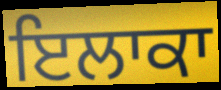
ਇਲਾਕਾ